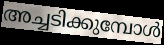
അച്ചടിക്കുമ്പോൾ